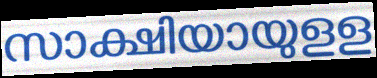
സാക്ഷിയായുളള